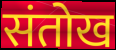
संतोख